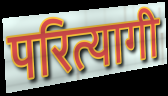
परित्यागी